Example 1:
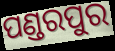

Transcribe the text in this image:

ପଣ୍ଡରପୁର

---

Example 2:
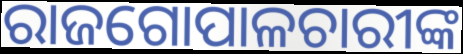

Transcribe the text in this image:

ରାଜଗୋପାଳଚାରୀଙ୍କ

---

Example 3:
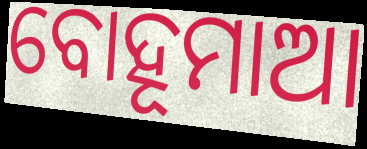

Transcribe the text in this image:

ବୋହୂମାଆ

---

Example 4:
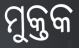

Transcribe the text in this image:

ମୁକ୍ତକ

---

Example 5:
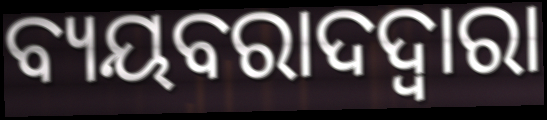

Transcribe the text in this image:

ବ୍ୟୟବରାଦଦ୍ଵାରା